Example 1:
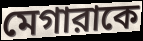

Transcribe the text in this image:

মেগারাকে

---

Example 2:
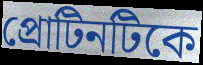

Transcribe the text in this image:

প্রোটিনটিকে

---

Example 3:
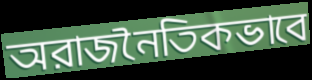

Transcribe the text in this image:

অরাজনৈতিকভাবে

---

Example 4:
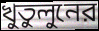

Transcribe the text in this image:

খুতুলুনের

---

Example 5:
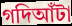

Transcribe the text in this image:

গদিআঁটা